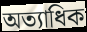
অত্যাধিক